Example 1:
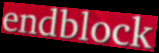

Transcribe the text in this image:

endblock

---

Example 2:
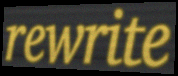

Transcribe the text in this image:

rewrite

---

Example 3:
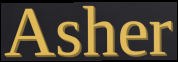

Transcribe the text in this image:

Asher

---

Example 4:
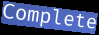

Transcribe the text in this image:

Complete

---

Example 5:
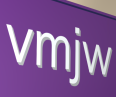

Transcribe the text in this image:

vmjw